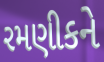
રમણીકને